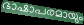
ഭാഷാപരമായും